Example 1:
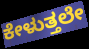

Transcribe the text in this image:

ಕೇಳುತ್ತಲೇ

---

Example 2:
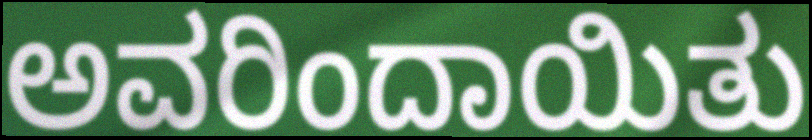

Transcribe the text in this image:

ಅವರಿಂದಾಯಿತು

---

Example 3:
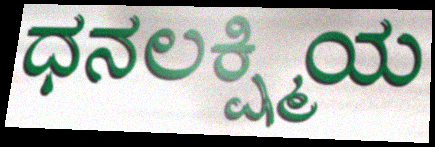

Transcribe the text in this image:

ಧನಲಕ್ಷ್ಮಿಯ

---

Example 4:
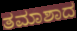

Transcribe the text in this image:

ತಮಾಶಾದ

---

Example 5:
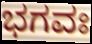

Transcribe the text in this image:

ಭಗವಃ